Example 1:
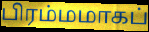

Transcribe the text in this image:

பிரம்மமாகப்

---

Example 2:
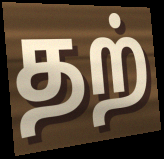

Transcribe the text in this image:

தற்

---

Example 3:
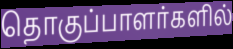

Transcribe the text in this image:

தொகுப்பாளர்களில்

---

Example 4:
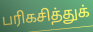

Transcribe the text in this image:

பரிகசித்துக்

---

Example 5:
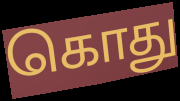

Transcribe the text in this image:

கொது